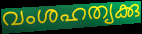
വംശഹത്യക്കു